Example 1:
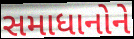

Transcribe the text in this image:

સમાધાનોને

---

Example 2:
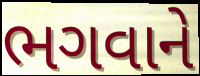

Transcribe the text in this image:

ભગવાને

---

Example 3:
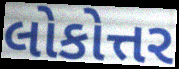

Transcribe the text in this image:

લોકોત્તર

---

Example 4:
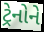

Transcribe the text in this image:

ટ્રેનોને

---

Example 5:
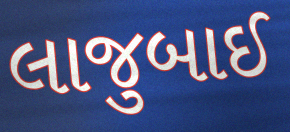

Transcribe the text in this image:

લાજુબાઈ